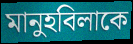
মানুহবিলাকে